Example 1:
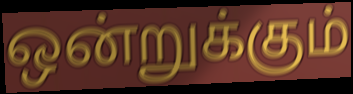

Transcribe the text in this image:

ஒன்றுக்கும்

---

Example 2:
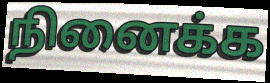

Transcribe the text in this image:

நினைக்க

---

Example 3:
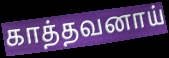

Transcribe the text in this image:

காத்தவனாய்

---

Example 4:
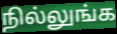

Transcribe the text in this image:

நில்லுங்க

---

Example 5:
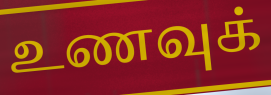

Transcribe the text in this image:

உணவுக்